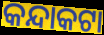
କନ୍ଦାକଟା